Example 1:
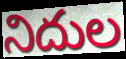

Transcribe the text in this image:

నిదుల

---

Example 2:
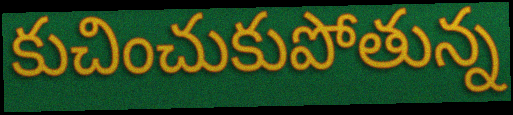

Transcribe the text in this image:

కుచించుకుపోతున్న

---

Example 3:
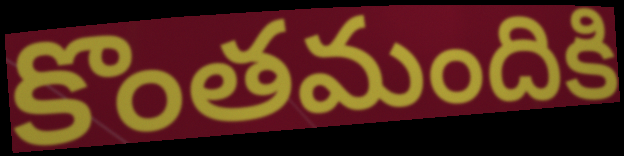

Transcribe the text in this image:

కొంతమందికి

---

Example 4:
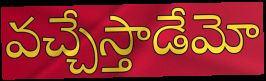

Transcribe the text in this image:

వచ్చేస్తాడేమో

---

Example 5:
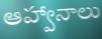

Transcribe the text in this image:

ఆహ్వానాలు